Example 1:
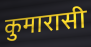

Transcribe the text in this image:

कुमारासी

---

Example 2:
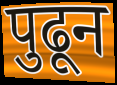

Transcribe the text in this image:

पुढून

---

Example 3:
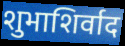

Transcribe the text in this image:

शुभाशिर्वाद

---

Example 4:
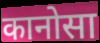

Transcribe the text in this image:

कानोसा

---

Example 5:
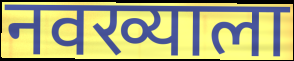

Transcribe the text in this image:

नवख्याला